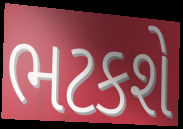
ભટકશે